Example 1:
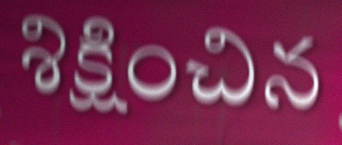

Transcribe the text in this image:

శిక్షించిన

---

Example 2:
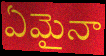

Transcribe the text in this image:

ఏమైనా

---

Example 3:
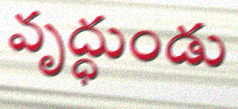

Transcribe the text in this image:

వృద్ధుండు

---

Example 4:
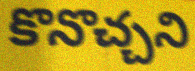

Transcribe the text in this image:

కొనొచ్చని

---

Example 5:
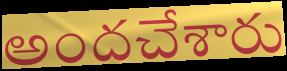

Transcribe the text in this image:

అందచేశారు